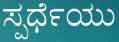
ಸ್ಪರ್ಧೆಯು